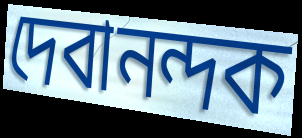
দেবানন্দক